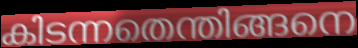
കിടന്നതെന്തിങ്ങനെ